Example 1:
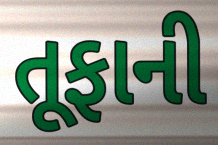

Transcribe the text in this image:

તૂફાની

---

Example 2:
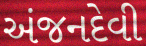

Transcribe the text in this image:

અંજનદેવી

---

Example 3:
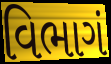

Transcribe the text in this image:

વિભાગં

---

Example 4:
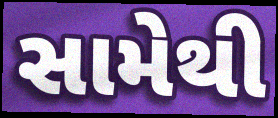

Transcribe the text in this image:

સામેથી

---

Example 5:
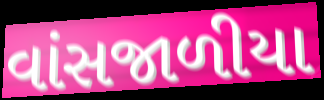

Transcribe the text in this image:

વાંસજાળીયા